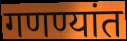
गणण्यांत